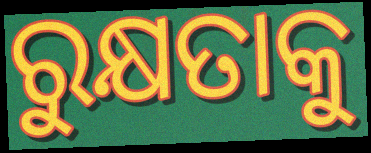
ରୁକ୍ଷତାକୁ